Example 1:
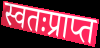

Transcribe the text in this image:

स्वतःप्राप्त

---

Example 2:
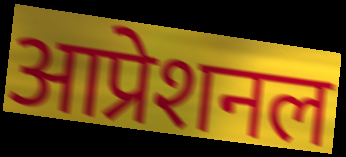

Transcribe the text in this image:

आप्रेशनल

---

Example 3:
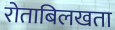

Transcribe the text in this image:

रोताबिलखता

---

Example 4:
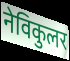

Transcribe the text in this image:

नेविकुलर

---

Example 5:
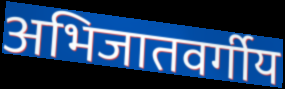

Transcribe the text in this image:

अभिजातवर्गीय